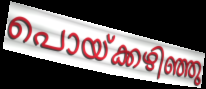
പൊയ്‌ക്കഴിഞ്ഞു